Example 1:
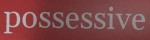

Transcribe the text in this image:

possessive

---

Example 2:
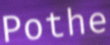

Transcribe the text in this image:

Pothe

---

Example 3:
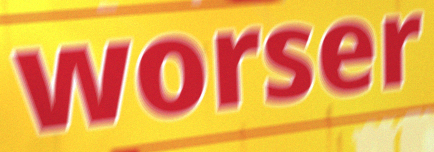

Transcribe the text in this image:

worser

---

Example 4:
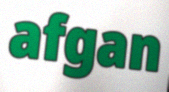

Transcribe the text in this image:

afgan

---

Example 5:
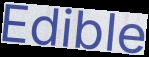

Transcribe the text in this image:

Edible